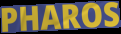
PHAROS